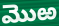
మొఱ